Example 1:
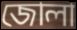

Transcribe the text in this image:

জোলা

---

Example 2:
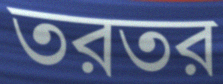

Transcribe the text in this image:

তরতর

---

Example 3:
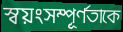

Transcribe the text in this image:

স্বয়ংসম্পূর্ণতাকে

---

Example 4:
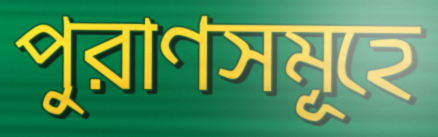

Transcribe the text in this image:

পুরাণসমূহে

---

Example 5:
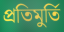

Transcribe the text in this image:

প্রতিমুর্তি